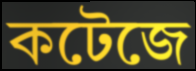
কটেজে